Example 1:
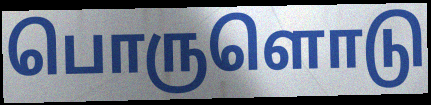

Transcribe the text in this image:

பொருளொடு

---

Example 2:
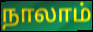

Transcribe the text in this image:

நாலாம்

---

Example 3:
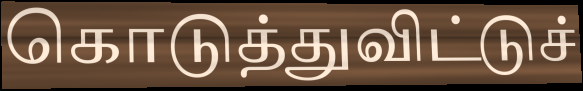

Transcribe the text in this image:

கொடுத்துவிட்டுச்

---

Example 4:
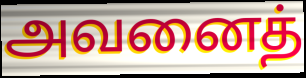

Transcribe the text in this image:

அவனைத்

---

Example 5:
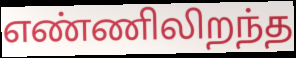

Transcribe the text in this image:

எண்ணிலிறந்த